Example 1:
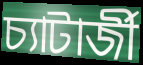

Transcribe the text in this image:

চ্যাটার্জী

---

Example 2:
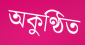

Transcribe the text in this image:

অকুণ্ঠিত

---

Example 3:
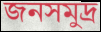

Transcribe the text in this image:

জনসমুদ্র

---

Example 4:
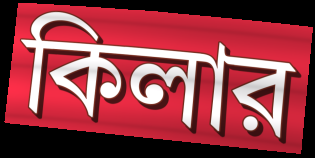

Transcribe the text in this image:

কিলার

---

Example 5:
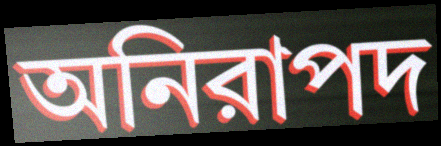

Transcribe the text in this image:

অনিরাপদ